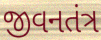
જીવનતંત્ર